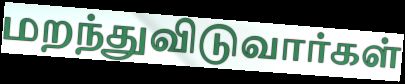
மறந்துவிடுவார்கள்